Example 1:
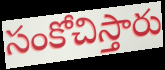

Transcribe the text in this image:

సంకోచిస్తారు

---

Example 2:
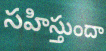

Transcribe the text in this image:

సహిస్తుందా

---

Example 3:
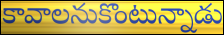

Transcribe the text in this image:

కావాలనుకొంటున్నాడు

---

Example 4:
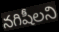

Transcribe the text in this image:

నగిషీలని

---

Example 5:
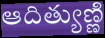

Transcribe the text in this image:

ఆదిత్యుణ్ణి